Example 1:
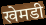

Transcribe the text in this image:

खेमडी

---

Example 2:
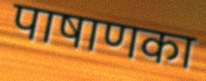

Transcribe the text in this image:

पाषाणका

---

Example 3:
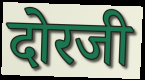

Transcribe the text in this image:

दोरजी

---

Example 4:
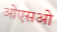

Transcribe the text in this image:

ओएसओ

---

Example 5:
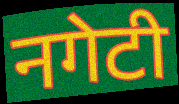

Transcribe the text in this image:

नगेटी